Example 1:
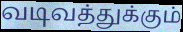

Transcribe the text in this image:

வடிவத்துக்கும்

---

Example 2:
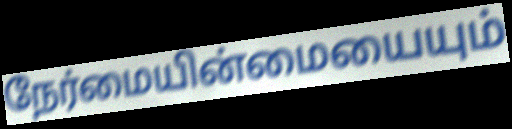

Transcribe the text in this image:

நேர்மையின்மையையும்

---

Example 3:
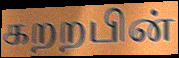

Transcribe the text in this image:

கறறபின்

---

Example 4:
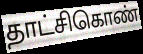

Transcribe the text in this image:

தாட்சிகொண்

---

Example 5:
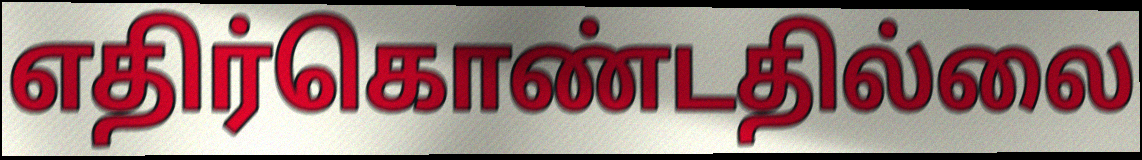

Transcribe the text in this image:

எதிர்கொண்டதில்லை